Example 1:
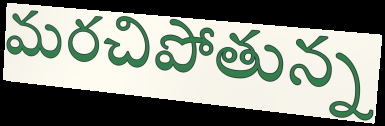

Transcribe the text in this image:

మరచిపోతున్న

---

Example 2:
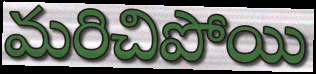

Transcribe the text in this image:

మరిచిపోయి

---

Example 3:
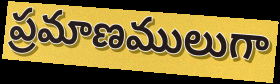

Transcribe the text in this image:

ప్రమాణములుగా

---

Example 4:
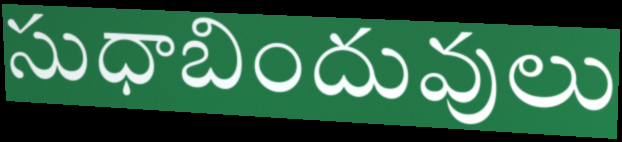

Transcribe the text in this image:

సుధాబిందువులు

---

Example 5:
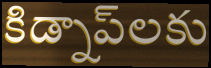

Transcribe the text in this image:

కిడ్నాప్‌లకు